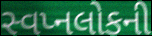
સ્વપ્નલોકની